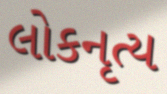
લોકનૃત્ય